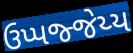
ઉપ્પજ્જેય્ય